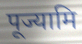
पूज्यामि